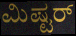
ಮಿಷ್ಟರ್